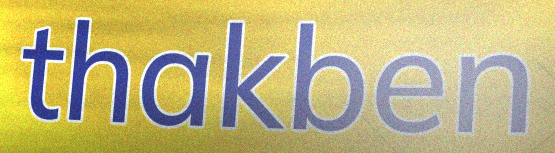
thakben